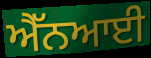
ਐੱਨਆਈ